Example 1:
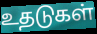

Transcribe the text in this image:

உதடுகள்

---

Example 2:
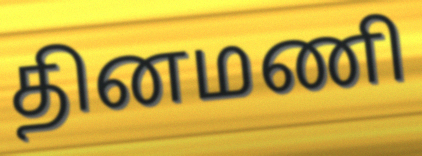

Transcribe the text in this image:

தினமணி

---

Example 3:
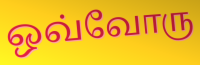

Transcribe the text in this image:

ஒவ்வோரு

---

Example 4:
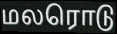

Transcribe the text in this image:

மலரொடு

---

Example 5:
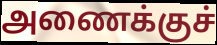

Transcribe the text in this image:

அணைக்குச்